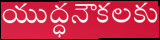
యుద్ధనౌకలకు